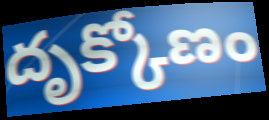
దృక్కోణం